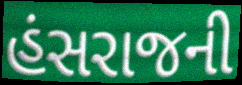
હંસરાજની